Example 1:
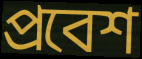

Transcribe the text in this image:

প্রবেশ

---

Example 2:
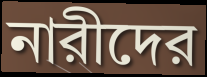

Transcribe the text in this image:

নারীদের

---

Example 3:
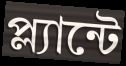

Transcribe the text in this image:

প্ল্যান্টে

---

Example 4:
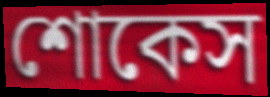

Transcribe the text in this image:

শোকেস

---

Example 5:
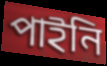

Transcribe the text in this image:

পাইনি